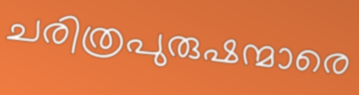
ചരിത്രപുരുഷന്മാരെ